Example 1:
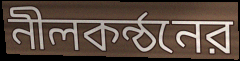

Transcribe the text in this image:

নীলকন্ঠনের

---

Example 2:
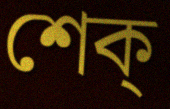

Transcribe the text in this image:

শেক্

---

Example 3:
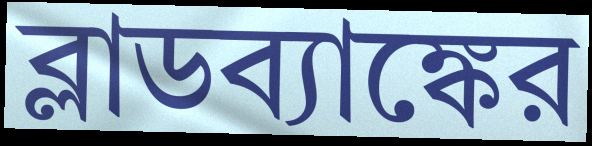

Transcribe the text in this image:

ব্লাডব্যাঙ্কের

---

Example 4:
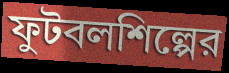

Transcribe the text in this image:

ফুটবলশিল্পের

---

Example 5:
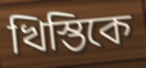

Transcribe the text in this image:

খিস্তিকে